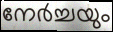
നേർച്ചയും